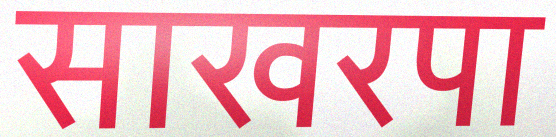
साखरपा